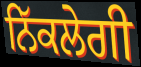
ਨਿੱਕਲੇਗੀ